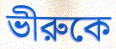
ভীরুকে